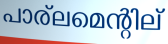
പാര്ലമെന്റില്